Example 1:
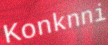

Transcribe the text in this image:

Konknni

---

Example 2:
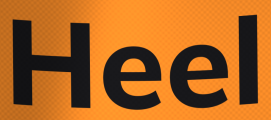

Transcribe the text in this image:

Heel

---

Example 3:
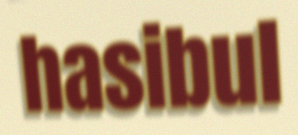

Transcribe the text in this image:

hasibul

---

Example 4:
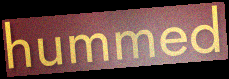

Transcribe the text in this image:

hummed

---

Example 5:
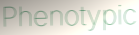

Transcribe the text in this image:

Phenotypic